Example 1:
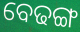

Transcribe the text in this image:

ବେଢଙ୍ଗ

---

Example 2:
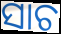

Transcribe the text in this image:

ସାଚ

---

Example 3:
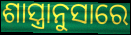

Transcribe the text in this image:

ଶାସ୍ତ୍ରାନୁସାରେ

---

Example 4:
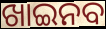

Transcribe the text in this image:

ଖାଇନବ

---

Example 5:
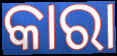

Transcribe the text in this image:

କାରା